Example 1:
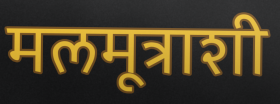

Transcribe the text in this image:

मलमूत्राशी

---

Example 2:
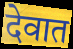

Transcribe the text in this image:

देवात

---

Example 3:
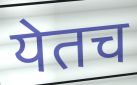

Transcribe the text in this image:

येतच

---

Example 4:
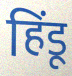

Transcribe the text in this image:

हिंडू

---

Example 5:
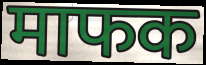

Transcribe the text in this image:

माफक